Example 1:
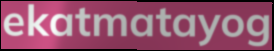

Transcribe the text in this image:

ekatmatayog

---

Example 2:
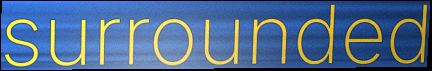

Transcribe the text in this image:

surrounded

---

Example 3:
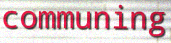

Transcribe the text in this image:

communing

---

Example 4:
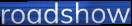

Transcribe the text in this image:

roadshow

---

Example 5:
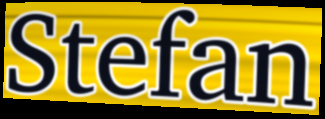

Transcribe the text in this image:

Stefan